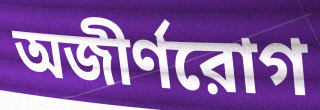
অজীর্ণরোগ